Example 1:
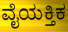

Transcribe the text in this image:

ವೈಯಕ್ತಿಕ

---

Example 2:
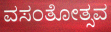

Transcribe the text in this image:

ವಸಂತೋತ್ಸವ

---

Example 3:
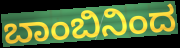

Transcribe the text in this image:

ಬಾಂಬಿನಿಂದ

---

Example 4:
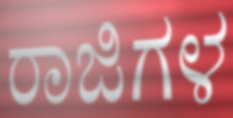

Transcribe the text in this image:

ರಾಜಿಗಳ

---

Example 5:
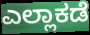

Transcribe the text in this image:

ಎಲ್ಲಾಕಡೆ